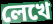
লেখে